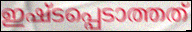
ഇഷ്ടപ്പെടാത്തത്